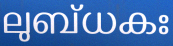
ലുബ്ധകഃ